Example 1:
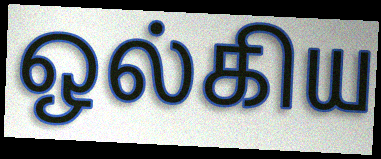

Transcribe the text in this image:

ஒல்கிய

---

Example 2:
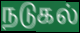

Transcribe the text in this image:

நடுகல்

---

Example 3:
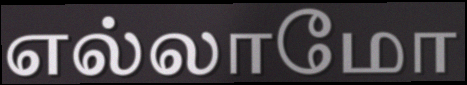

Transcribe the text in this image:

எல்லாமோ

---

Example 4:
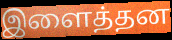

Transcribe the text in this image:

இளைத்தன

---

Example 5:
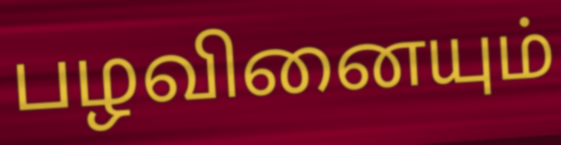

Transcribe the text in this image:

பழவினையும்